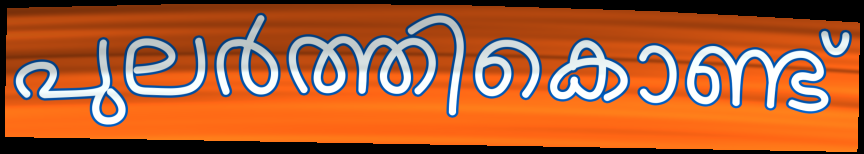
പുലർത്തികൊണ്ട്